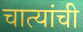
चात्यांची